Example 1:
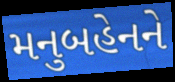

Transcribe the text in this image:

મનુબહેનને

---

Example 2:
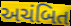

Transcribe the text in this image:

અચંબિત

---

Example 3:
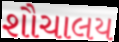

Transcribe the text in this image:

શૌચાલય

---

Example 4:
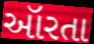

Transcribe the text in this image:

ઑરતા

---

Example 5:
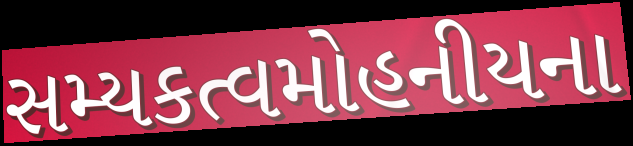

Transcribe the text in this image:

સમ્યકત્વમોહનીયના